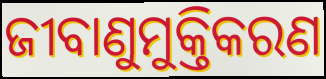
ଜୀବାଣୁମୁକ୍ତିକରଣ